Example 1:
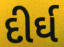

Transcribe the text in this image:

દીર્ઘ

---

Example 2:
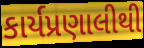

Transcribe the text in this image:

કાર્યપ્રણાલીથી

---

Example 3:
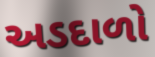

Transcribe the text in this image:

અડદાળો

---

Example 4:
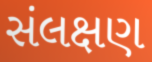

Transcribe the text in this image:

સંલક્ષણ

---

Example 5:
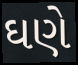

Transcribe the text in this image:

ઘણે